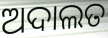
ଅଦାଲତ